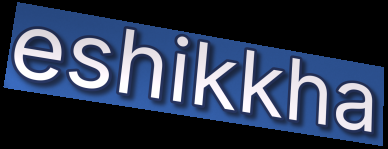
eshikkha